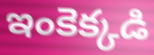
ఇంకెక్కడి